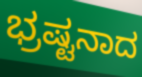
ಭ್ರಷ್ಟನಾದ